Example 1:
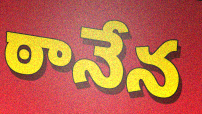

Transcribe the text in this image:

ఠానేన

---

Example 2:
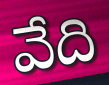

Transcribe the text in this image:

వేది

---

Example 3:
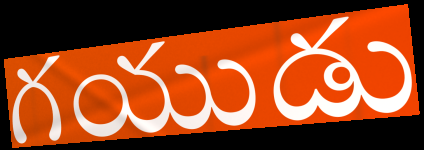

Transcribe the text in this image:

గయుడు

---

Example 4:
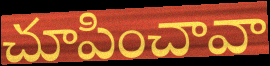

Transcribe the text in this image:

చూపించావా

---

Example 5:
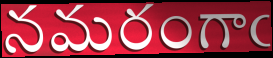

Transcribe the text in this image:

నమరంగాఁ